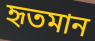
হৃতমান